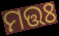
ମତ୍ତଃ